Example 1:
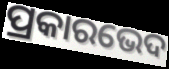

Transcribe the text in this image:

ପ୍ରକାରଭେଦ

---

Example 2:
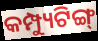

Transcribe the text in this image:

କମ୍ପ୍ୟୁଟିଙ୍ଗ୍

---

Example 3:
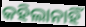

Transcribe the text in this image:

କହିଲାନାହିଁ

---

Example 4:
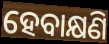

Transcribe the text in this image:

ହେବାକ୍ଷଣି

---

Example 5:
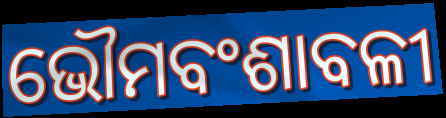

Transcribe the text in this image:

ଭୌମବଂଶାବଳୀ